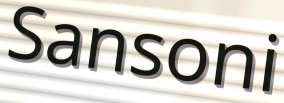
Sansoni